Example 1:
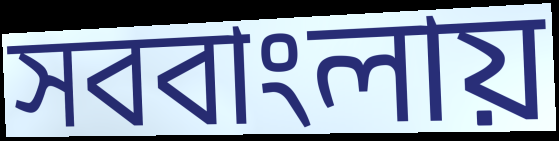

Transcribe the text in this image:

সববাংলায়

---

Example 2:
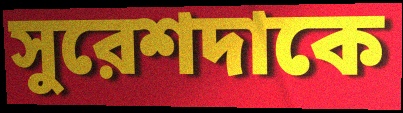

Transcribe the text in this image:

সুরেশদাকে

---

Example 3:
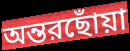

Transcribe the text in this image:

অন্তরছোঁয়া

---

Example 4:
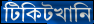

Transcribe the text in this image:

টিকিটখানি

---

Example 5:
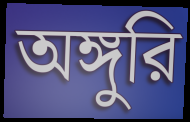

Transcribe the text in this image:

অঙ্গুরি